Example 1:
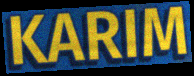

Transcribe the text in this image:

KARIM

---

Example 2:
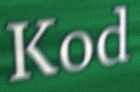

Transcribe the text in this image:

Kod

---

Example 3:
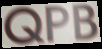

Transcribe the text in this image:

QPB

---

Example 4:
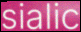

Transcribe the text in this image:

sialic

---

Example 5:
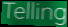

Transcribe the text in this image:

Telling